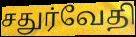
சதுர்வேதி